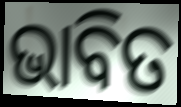
ଭାବିତ